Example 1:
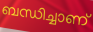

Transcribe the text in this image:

ബന്ധിച്ചാണ്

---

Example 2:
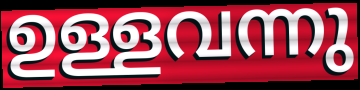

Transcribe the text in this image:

ഉള്ളവന്നു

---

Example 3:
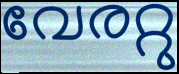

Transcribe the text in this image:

വേരറ്റു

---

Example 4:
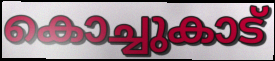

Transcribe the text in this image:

കൊച്ചുകാട്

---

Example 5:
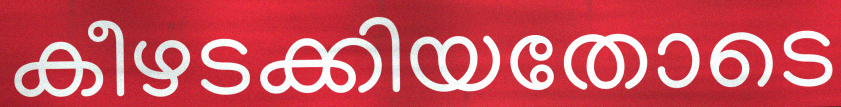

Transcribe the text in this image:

കീഴടക്കിയതോടെ